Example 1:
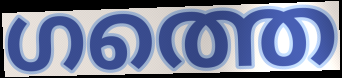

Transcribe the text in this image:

ഗത്തെ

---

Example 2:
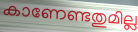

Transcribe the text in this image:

കാണേണ്ടതുമില്ല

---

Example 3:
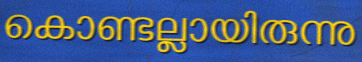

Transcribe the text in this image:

കൊണ്ടല്ലായിരുന്നു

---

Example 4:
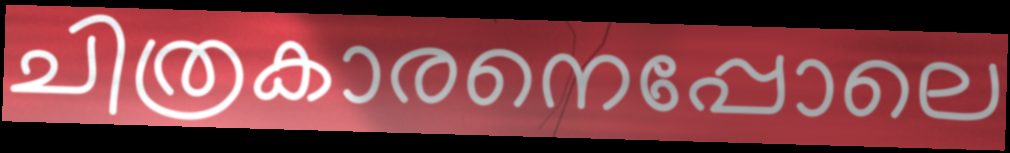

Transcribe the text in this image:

ചിത്രകാരനെപ്പോലെ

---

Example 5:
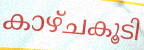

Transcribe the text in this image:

കാഴ്ചകൂടി